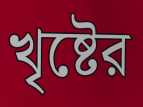
খৃষ্টের